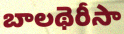
బాలథెరీసా